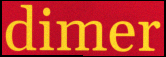
dimer